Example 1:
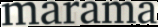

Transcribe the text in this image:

marama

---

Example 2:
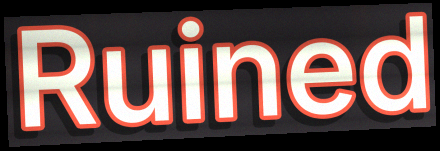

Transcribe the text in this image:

Ruined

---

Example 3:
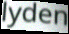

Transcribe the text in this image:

lyden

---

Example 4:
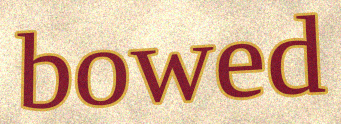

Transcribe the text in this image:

bowed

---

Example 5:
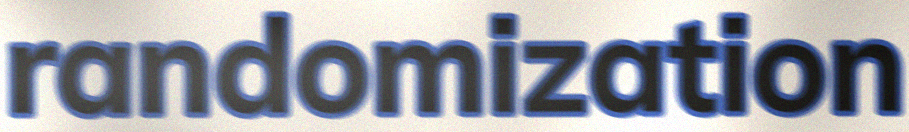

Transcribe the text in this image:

randomization